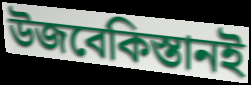
উজবেকিস্তানই